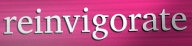
reinvigorate